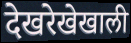
देखरेखेखाली